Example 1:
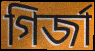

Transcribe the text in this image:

গির্জা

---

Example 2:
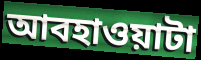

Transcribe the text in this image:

আবহাওয়াটা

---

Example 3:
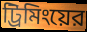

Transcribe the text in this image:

ট্রিমিংয়ের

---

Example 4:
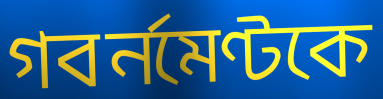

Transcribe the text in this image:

গবর্নমেণ্টকে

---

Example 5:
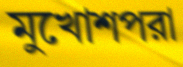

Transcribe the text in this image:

মুখোশপরা